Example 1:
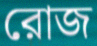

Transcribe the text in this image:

রোজ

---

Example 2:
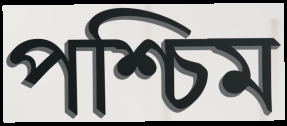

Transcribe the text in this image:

পশ্চিম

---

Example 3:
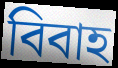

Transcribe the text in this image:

বিবাহ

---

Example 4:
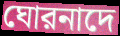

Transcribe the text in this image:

ঘোরনাদে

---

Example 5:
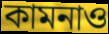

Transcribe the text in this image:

কামনাও